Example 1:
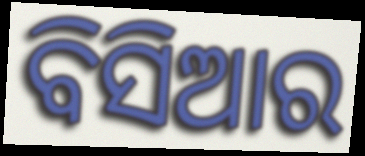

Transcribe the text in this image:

ବିସିଆର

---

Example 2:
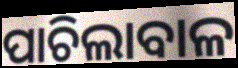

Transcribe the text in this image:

ପାଚିଲାବାଳ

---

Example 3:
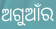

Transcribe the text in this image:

ଅଗୁଆଁର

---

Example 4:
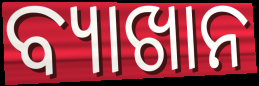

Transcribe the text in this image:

ବ୍ୟାଖାନ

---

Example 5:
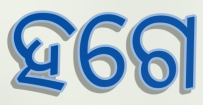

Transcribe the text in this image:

ହଗେ